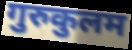
गुरुकुलम